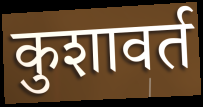
कुशावर्त